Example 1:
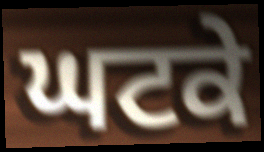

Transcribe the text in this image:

ਘਟਕੇ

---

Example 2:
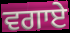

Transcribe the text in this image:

ਵਗਾਏ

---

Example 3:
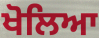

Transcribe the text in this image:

ਖੋਲਿਆ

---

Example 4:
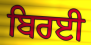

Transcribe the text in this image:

ਬਿਰਈ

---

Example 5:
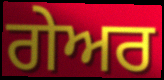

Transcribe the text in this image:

ਗੇਅਰ